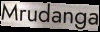
Mrudanga